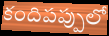
కందిపప్పులో